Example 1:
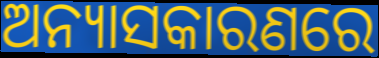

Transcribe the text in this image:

ଅନ୍ୟାସକାରଣରେ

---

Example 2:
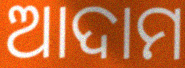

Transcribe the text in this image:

ଆଦାମ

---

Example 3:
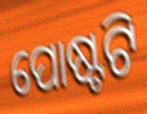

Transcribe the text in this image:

ପୋଷ୍ଟଟି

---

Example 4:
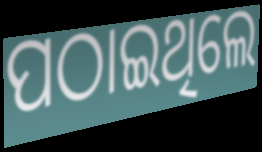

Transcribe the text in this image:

ପଠାଇଥିଲେ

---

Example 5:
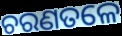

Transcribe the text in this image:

ଚରଣତଳେ